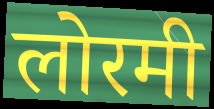
लोरमी